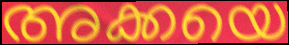
അക്കയെ